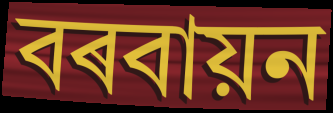
বৰবায়ন